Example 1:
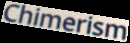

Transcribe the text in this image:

Chimerism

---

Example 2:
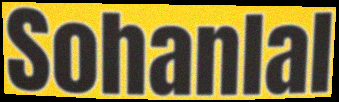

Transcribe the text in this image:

Sohanlal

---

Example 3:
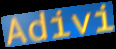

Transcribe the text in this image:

Adivi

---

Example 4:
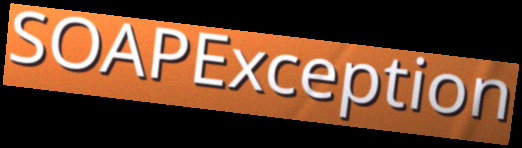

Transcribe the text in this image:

SOAPException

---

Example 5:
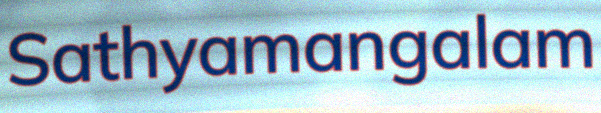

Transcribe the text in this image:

Sathyamangalam